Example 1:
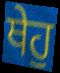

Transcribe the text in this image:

ਥੇਹੁ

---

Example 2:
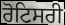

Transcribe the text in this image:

ਰੋਟਿਸਰੀ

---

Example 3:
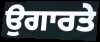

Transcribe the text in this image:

ਉਗਾਰਤੇ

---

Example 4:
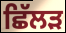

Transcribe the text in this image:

ਛਿੱਲੜ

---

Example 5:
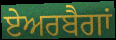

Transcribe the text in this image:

ਏਅਰਬੈਗਾਂ